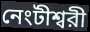
নেংটীশ্বরী